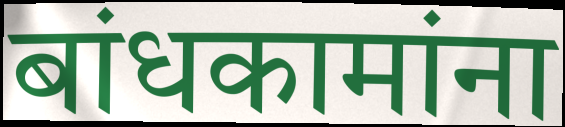
बांधकामांना